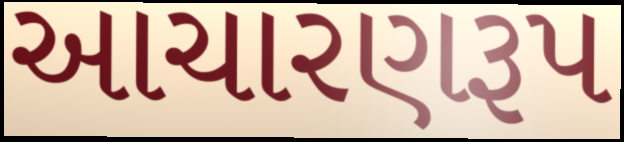
આચારણરૂપ